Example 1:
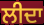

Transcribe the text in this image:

ਲੀਦਾ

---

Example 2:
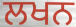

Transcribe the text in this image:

ਲਖਨ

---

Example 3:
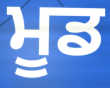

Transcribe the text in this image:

ਮੂਡ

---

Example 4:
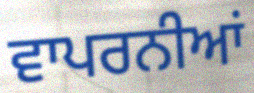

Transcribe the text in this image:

ਵਾਪਰਨੀਆਂ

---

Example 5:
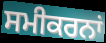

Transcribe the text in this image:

ਸਮੀਕਰਨਾਂ